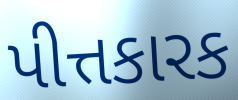
પીત્તકારક